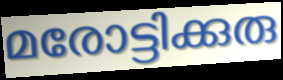
മരോട്ടിക്കുരു